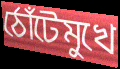
ঠোঁটেমুখে